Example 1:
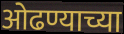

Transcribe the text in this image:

ओढण्याच्या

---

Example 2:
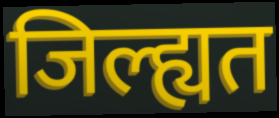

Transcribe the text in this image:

जिल्ह्यत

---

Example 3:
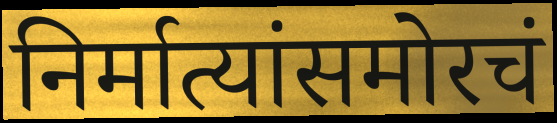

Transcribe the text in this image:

निर्मात्यांसमोरचं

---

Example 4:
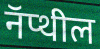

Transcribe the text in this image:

नॅप्थील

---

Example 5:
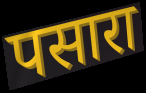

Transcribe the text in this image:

पसारा